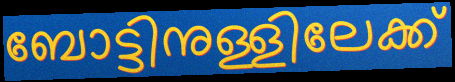
ബോട്ടിനുള്ളിലേക്ക്